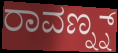
ರಾವಣ್ನ್ನ್